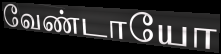
வேண்டாயோ